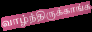
வாழ்ந்திருக்காங்க